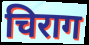
चिराग